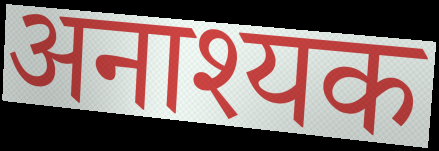
अनाश्यक